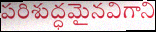
పరిశుద్ధమైనవిగాని